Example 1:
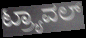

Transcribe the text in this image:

ಟ್ರ್ಯಾವಲ್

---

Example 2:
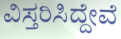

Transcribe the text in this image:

ವಿಸ್ತರಿಸಿದ್ದೇವೆ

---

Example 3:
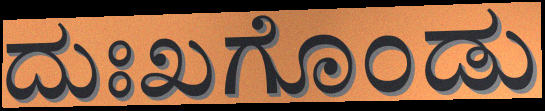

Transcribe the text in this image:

ದುಃಖಗೊಂಡು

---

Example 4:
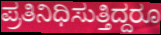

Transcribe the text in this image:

ಪ್ರತಿನಿಧಿಸುತ್ತಿದ್ದರೂ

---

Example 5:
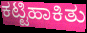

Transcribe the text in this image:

ಕಟ್ಟಿಹಾಕಿತು